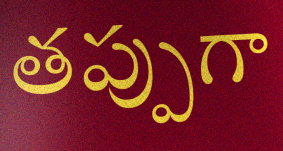
తప్పుగా